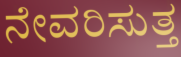
ನೇವರಿಸುತ್ತ